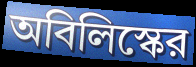
অবিলিস্কের